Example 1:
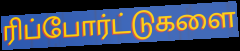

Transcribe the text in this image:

ரிப்போர்ட்டுகளை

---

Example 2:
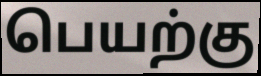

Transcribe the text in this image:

பெயற்கு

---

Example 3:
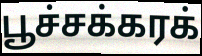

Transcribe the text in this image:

பூச்சக்கரக்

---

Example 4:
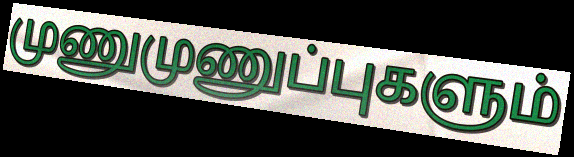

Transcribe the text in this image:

முணுமுணுப்புகளும்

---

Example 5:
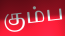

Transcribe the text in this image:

கும்ப